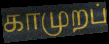
காமுறப்